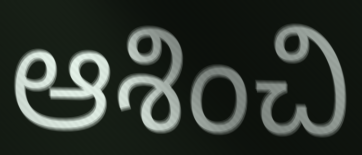
ఆశించి